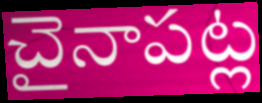
చైనాపట్ల